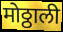
मोठ्ठाली